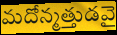
మదోన్మత్తుడవై